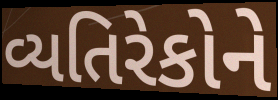
વ્યતિરેકોને